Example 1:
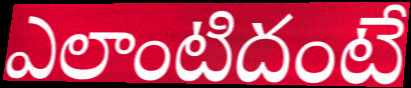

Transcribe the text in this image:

ఎలాంటిదంటే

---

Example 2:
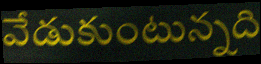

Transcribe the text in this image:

వేడుకుంటున్నది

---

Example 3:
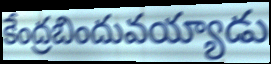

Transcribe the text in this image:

కేంద్రబిందువయ్యాడు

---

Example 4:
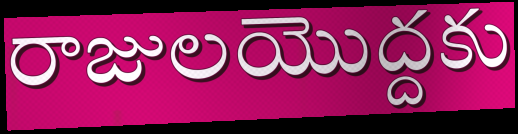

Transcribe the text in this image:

రాజులయొద్దకు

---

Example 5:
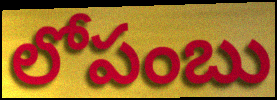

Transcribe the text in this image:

లోపంబు